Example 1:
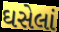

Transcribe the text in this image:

ઘસેલાં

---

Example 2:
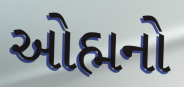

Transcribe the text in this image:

ઓહ્મનો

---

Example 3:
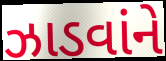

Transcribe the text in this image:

ઝાડવાંને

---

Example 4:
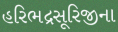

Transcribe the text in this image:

હરિભદ્રસૂરિજીના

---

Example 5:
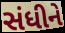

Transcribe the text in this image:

સંધીને